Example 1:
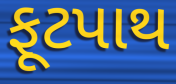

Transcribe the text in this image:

ફૂટપાથ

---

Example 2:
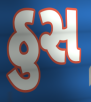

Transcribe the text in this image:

ઠુસ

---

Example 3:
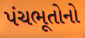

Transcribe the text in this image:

પંચભૂતોનો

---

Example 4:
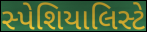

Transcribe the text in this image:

સ્પેશિયાલિસ્ટે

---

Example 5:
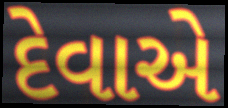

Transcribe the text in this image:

દેવાએ